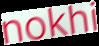
nokhi